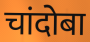
चांदोबा